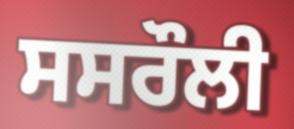
ਸਸਰੌਲੀ